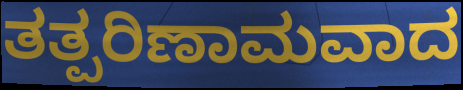
ತತ್ಪರಿಣಾಮವಾದ